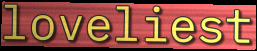
loveliest